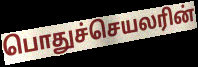
பொதுச்செயலரின்